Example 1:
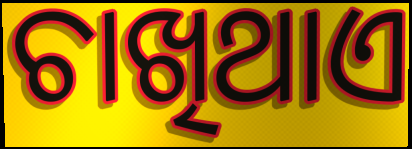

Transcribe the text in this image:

ଚାଖିଥାଏ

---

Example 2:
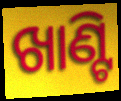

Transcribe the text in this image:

ଖାଣ୍ଟି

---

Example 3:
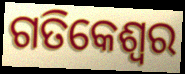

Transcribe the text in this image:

ଗତିକେଶ୍ବର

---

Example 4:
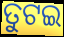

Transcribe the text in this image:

ତୁଟଇ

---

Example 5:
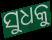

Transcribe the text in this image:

ସୁଧକୁ